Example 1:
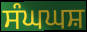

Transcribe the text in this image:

ਸੰਘਘਸ਼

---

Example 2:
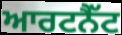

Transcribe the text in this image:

ਆਰਟਨੈੱਟ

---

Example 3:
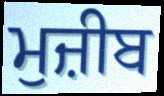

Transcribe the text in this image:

ਮੁਜ਼ੀਬ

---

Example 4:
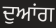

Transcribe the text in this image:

ਦੁਆਂਗ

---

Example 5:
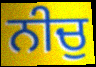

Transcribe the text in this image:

ਨੀਚੁ